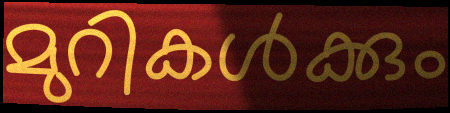
മുറികൾക്കും